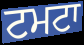
ਟਮਟਾ